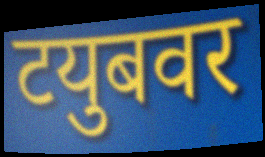
टयुबवर